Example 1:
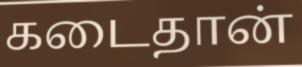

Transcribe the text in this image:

கடைதான்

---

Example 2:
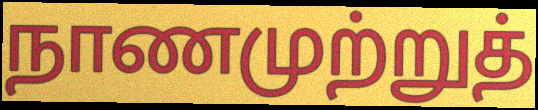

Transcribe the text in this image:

நாணமுற்றுத்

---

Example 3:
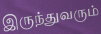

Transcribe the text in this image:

இருந்துவரும்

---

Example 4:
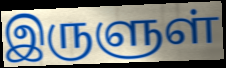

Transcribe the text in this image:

இருளுள்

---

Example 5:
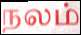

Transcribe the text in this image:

நலம்